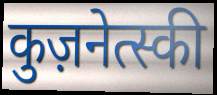
कुज़नेत्स्की